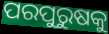
ପରପୁରୁଷକୁ